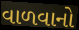
વાળવાનો